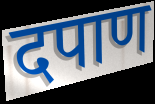
दपाण